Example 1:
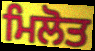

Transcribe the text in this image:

ਮਿਲੋਤ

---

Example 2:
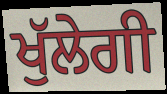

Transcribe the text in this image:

ਖੁੱਲੇਗੀ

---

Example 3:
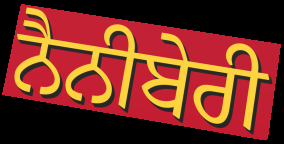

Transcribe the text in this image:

ਨੈਨੀਬੇਰੀ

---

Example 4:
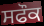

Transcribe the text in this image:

ਸਫੌਕ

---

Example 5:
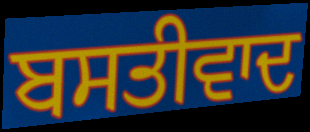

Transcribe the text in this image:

ਬਸਤੀਵਾਦ